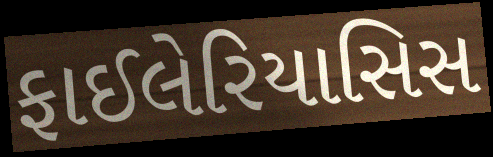
ફાઈલેરિયાસિસ